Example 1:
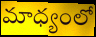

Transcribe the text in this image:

మాధ్యంలో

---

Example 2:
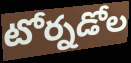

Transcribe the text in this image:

టోర్నడోల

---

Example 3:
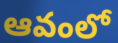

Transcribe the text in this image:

ఆవంలో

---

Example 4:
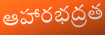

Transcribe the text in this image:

ఆహారభద్రత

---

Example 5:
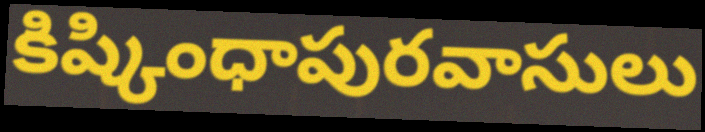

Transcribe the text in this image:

కిష్కింధాపురవాసులు